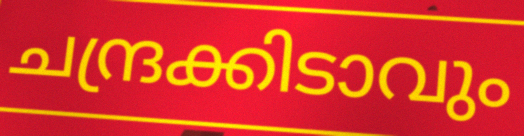
ചന്ദ്രക്കിടാവും